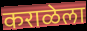
कराळेला